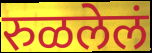
रुळलेलं